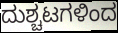
ದುಶ್ಚಟಗಳಿಂದ